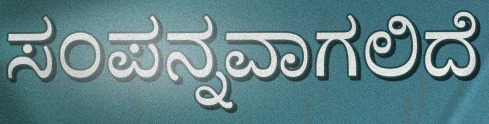
ಸಂಪನ್ನವಾಗಲಿದೆ